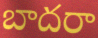
బాదరా